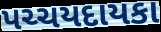
પચ્ચયદાયકા